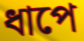
ধাপে